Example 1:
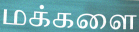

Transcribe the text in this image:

மக்களை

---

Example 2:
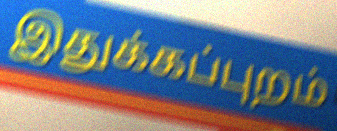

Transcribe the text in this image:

இதுக்கப்புறம்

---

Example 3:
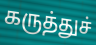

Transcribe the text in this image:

கருத்துச்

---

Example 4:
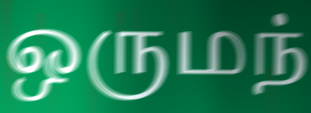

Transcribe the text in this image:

ஒருமந்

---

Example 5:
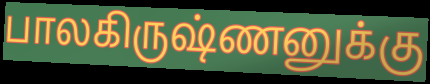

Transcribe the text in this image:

பாலகிருஷ்ணனுக்கு